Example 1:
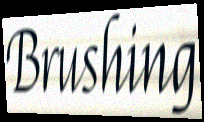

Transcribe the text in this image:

Brushing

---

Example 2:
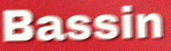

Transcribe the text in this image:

Bassin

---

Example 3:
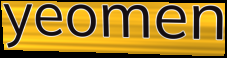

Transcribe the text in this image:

yeomen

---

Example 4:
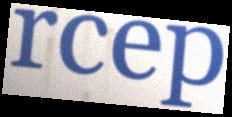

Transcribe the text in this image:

rcep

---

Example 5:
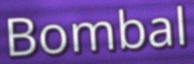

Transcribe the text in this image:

Bombal